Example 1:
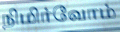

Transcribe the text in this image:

நிமிர்வோம்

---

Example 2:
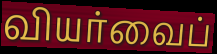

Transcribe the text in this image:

வியர்வைப்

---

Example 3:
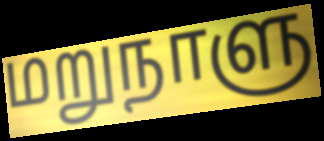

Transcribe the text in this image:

மறுநாளு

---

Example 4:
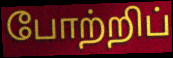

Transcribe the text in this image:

போற்றிப்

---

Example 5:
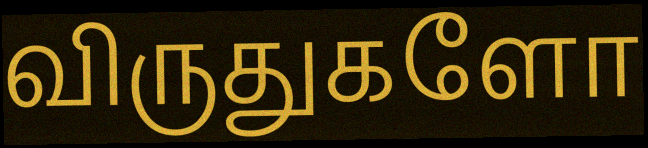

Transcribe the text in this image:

விருதுகளோ